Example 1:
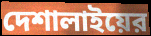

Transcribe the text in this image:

দেশালাইয়ের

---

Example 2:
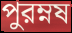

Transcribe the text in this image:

পুরম্নষ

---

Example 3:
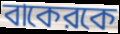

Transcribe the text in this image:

বাকেরকে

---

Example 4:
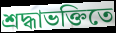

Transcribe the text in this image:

শ্রদ্ধাভক্তিতে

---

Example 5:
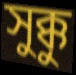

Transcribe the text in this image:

সুক্কু